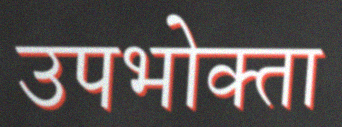
उपभोक्‍ता